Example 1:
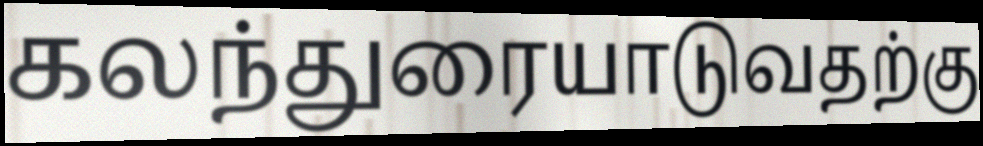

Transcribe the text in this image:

கலந்துரையாடுவதற்கு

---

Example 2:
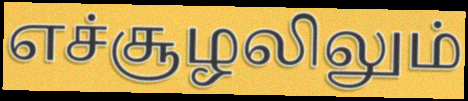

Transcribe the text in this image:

எச்சூழலிலும்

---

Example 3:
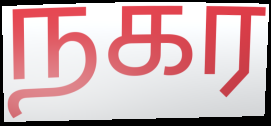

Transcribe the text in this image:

நகர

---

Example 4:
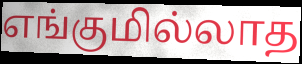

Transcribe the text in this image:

எங்குமில்லாத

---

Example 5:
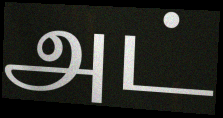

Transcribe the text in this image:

அட்